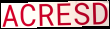
ACRESD